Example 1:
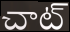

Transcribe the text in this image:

చాట్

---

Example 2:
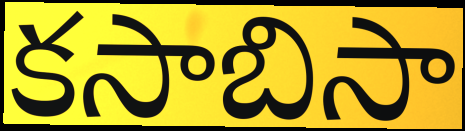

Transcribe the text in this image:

కసాబిసా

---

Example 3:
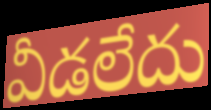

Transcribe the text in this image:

వీడలేదు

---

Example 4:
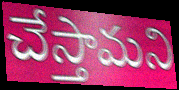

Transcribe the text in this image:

చేస్తామని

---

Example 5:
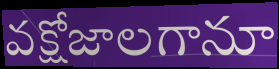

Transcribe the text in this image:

వక్షోజాలగానూ